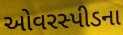
ઓવરસ્પીડના